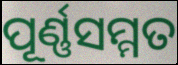
ପୂର୍ଣ୍ଣସମ୍ମତ